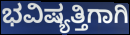
ಭವಿಷ್ಯತ್ತಿಗಾಗಿ